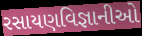
રસાયણવિજ્ઞાનીઓ